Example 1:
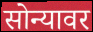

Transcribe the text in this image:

सोन्यावर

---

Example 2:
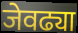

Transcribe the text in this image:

जेवढ्या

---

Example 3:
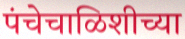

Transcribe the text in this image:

पंचेचाळिशीच्या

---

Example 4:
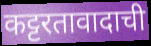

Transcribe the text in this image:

कट्टरतावादाची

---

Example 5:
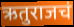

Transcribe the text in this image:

ऋतुराजचं